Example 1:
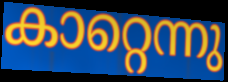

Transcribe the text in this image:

കാറ്റെന്നു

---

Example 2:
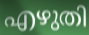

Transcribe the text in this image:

എഴുതി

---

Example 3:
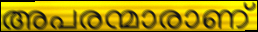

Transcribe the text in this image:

അപരന്മാരാണ്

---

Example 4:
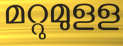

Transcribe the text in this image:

മറ്റുമുളള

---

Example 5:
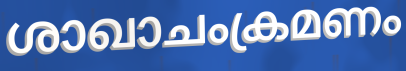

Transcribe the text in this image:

ശാഖാചംക്രമണം